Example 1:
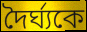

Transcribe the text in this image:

দৈর্ঘ্যকে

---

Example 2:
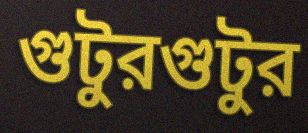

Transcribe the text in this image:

গুটুরগুটুর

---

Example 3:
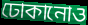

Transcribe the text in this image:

ঢোকানোও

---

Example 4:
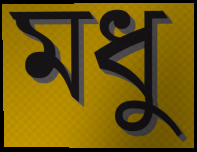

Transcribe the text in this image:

মধু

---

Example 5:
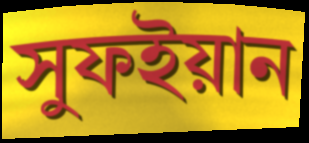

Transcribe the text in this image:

সুফইয়ান